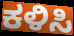
ಕಳಿಸಿ